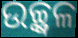
ଉଚ୍ଛ୍ଵଳ